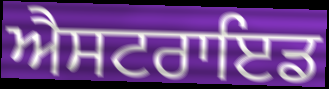
ਐਸਟਰਾਇਡ